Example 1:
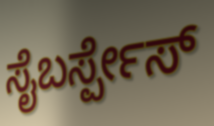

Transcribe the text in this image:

ಸೈಬರ್ಸ್ಪೇಸ್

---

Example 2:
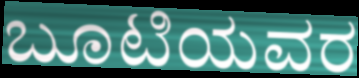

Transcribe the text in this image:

ಬೂಟಿಯವರ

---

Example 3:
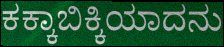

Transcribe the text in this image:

ಕಕ್ಕಾಬಿಕ್ಕಿಯಾದನು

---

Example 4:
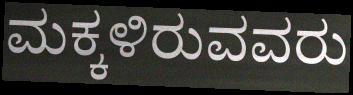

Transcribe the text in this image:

ಮಕ್ಕಳಿರುವವರು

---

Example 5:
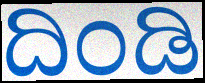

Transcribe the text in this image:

ದಿಂಡಿ